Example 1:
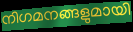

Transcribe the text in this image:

നിഗമനങ്ങളുമായി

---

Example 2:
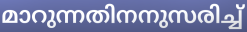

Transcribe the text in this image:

മാറുന്നതിനനുസരിച്ച്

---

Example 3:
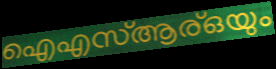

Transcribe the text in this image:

ഐഎസ്ആര്ഒയും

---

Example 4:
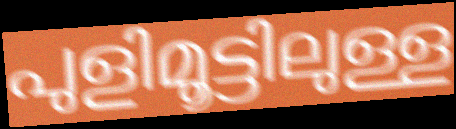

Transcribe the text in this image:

പുളിമൂട്ടിലുള്ള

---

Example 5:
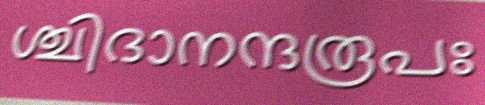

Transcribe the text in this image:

ശ്ചിദാനന്ദരൂപഃ